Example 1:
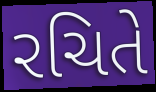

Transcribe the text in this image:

રચિતે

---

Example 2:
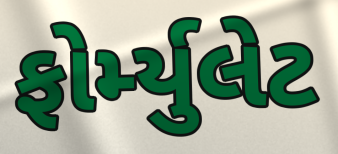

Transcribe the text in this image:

ફોર્મ્યુલેટ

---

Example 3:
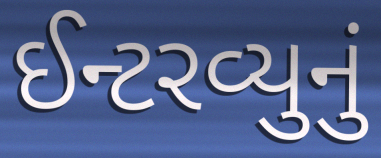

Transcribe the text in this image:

ઈન્ટરવ્યુનું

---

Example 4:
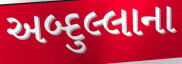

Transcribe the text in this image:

અબ્દુલ્લાના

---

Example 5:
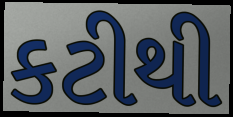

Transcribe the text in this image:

કટીથી